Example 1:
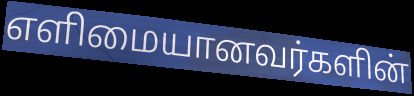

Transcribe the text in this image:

எளிமையானவர்களின்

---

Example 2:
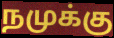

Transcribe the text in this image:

நமுக்கு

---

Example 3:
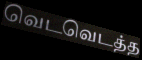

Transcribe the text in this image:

வெடவெடத்த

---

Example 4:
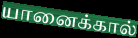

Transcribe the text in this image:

யானைக்கால்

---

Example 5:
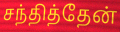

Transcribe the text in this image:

சந்தித்தேன்